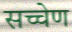
सच्चेण